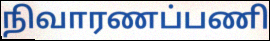
நிவாரணப்பணி